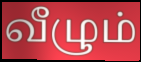
வீழும்